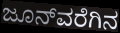
ಜೂನ್‌ವರೆಗಿನ